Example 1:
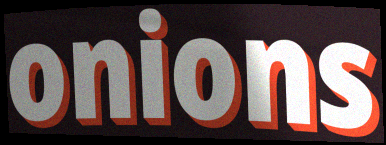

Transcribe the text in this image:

onions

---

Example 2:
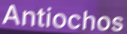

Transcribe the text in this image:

Antiochos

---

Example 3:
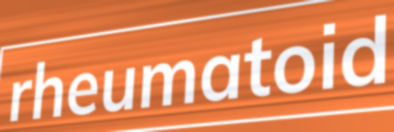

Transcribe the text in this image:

rheumatoid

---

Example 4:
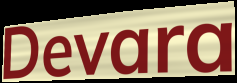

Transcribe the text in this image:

Devara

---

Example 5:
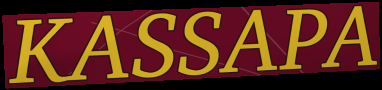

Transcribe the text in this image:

KASSAPA